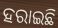
ହରାଇଛି